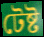
টেষ্ট